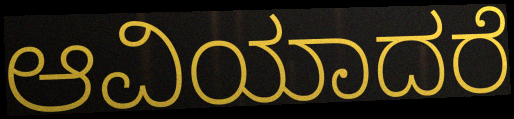
ಆವಿಯಾದರೆ